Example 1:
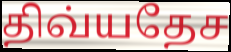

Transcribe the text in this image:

திவ்யதேச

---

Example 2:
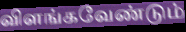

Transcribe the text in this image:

விளங்கவேண்டும்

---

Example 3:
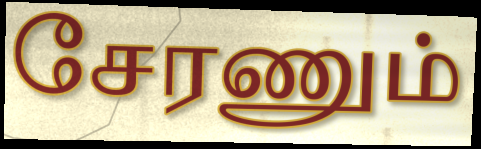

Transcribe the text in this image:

சேரணும்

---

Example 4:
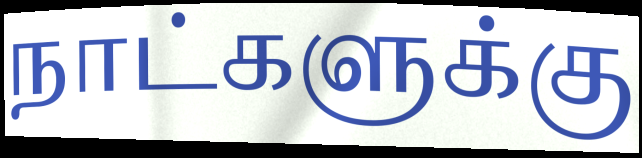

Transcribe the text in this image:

நாட்களுக்கு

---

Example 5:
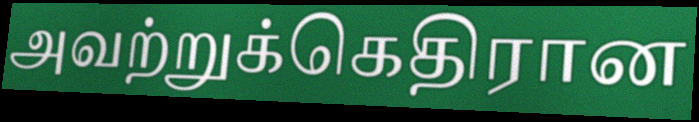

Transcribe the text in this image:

அவற்றுக்கெதிரான